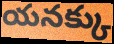
యనక్కు